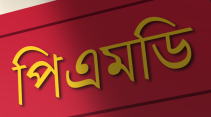
পিএমডি